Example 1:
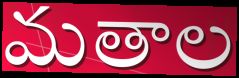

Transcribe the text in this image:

మతాల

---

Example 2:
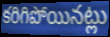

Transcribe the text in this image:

కరిగిపోయినట్లు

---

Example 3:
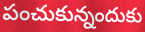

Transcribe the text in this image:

పంచుకున్నందుకు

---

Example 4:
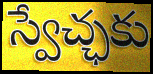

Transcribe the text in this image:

స్వేచ్ఛకు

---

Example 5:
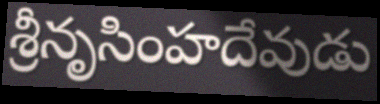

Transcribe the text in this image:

శ్రీనృసింహదేవుడు